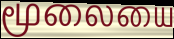
மூலையை